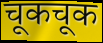
चूकचूक